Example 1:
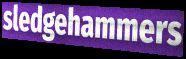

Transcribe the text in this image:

sledgehammers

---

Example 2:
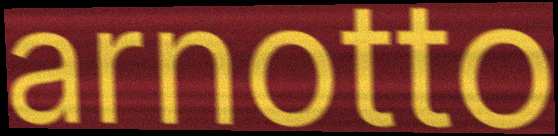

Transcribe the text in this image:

arnotto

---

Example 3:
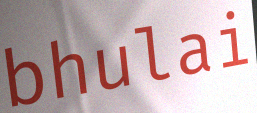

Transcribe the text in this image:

bhulai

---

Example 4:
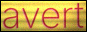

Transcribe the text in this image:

avert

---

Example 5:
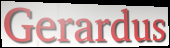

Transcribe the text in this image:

Gerardus